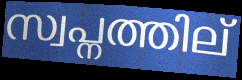
സ്വപ്നത്തില്